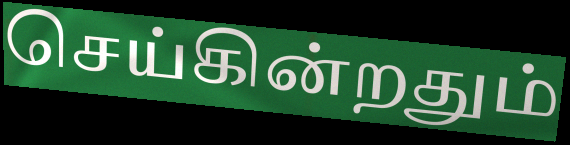
செய்கின்றதும்